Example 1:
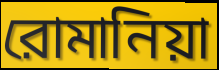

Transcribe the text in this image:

রোমানিয়া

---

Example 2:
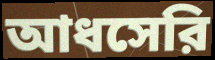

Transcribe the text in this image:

আধসেরি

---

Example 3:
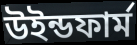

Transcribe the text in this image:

উইন্ডফার্ম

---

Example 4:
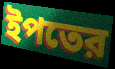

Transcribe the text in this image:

ইপতের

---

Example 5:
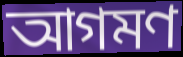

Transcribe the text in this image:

আগমণ